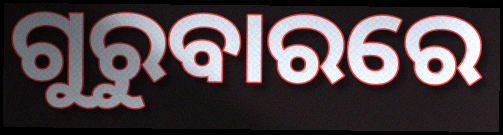
ଗୁରୁବାରରେ